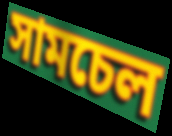
সামচেল